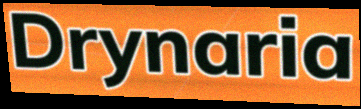
Drynaria